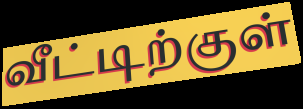
வீட்டிற்குள்